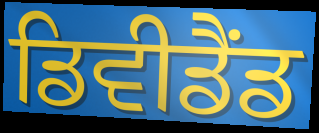
ਡਿਵੀਡੈਂਡ